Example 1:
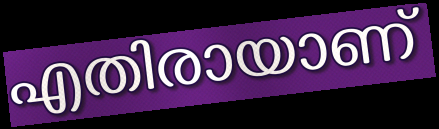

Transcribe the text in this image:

എതിരായാണ്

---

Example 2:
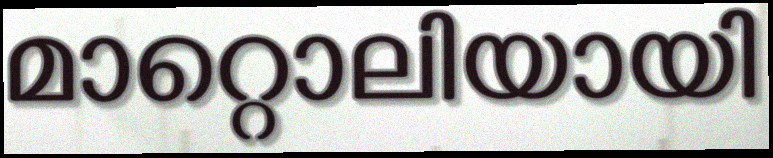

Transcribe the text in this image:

മാറ്റൊലിയായി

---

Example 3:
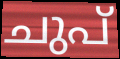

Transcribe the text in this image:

ചുപ്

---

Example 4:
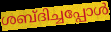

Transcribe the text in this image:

ശബ്ദിച്ചപ്പോൾ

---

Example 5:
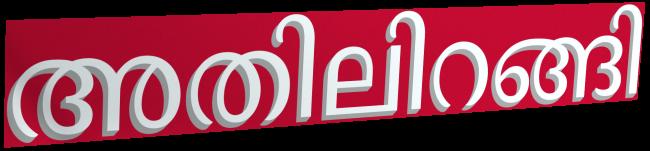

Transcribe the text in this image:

അതിലിറങ്ങി